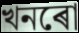
খনৰো